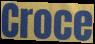
Croce